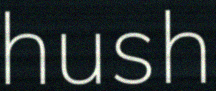
hush